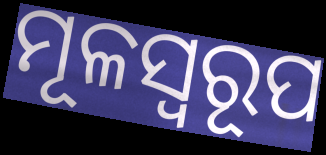
ମୂଳସ୍ୱରୂପ